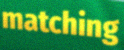
matching